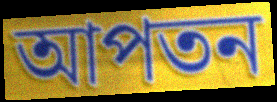
আপতন